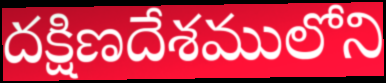
దక్షిణదేశములోని